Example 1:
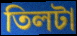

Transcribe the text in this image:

তিলটা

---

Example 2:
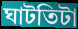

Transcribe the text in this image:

ঘাটতিটা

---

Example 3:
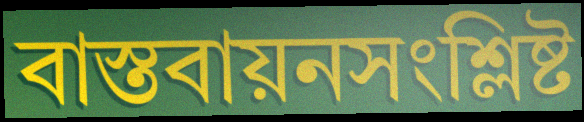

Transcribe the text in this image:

বাস্তবায়নসংশ্লিষ্ট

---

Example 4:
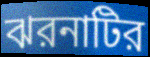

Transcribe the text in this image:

ঝরনাটির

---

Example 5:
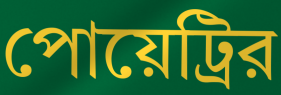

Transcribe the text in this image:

পোয়েট্রির